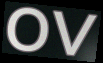
ov